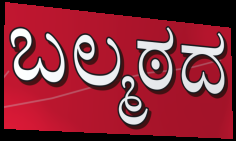
ಬಲ್ಮಠದ